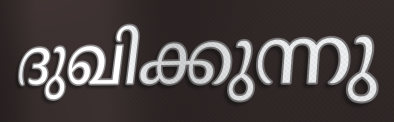
ദുഖിക്കുന്നു